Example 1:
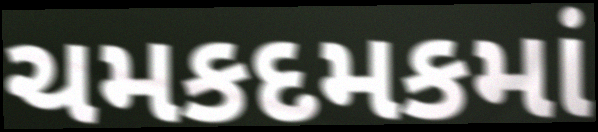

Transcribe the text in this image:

ચમકદમકમાં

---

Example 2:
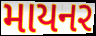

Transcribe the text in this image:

માયનર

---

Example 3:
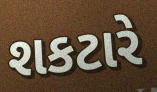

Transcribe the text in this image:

શકટારે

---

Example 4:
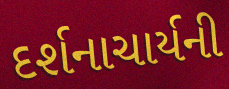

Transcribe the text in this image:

દર્શનાચાર્યની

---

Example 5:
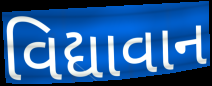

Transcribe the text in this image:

વિદ્યાવાન